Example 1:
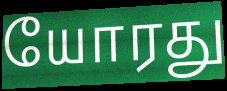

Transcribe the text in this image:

யோரது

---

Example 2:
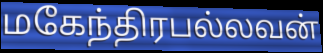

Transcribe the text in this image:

மகேந்திரபல்லவன்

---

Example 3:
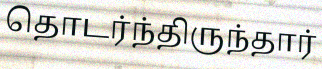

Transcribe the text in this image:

தொடர்ந்திருந்தார்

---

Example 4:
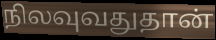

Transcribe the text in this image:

நிலவுவதுதான்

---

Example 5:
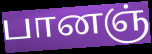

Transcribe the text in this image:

பானஞ்